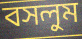
বসলুম